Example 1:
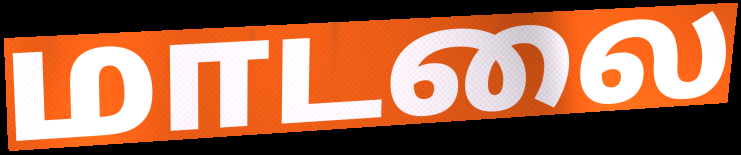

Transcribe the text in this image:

மாடலை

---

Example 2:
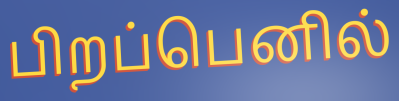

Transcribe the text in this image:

பிறப்பெனில்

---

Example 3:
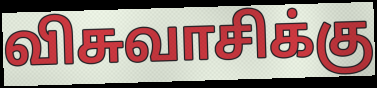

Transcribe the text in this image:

விசுவாசிக்கு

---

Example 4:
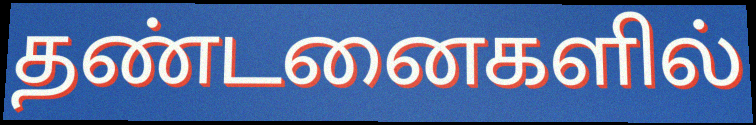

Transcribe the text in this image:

தண்டனைகளில்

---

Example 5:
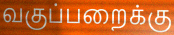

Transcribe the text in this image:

வகுப்பறைக்கு